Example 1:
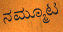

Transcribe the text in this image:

ನಮ್ಮೂಟ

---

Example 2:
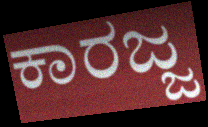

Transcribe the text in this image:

ಕಾರಜ್ಜ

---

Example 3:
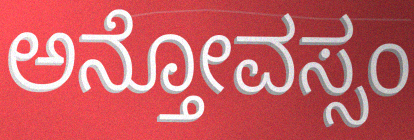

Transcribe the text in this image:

ಅನ್ತೋವಸ್ಸಂ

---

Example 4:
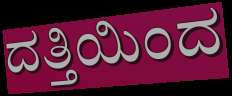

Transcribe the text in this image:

ದತ್ತಿಯಿಂದ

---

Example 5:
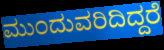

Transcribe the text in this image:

ಮುಂದುವರಿದಿದ್ದರೆ